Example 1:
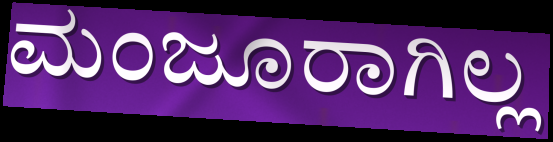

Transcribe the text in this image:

ಮಂಜೂರಾಗಿಲ್ಲ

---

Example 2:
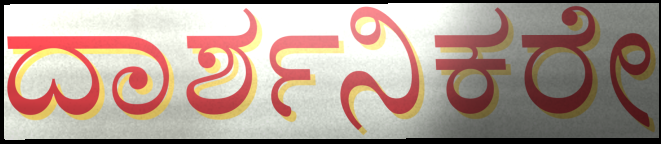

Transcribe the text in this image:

ದಾರ್ಶನಿಕರೇ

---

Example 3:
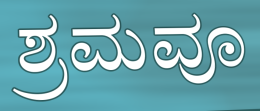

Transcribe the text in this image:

ಶ್ರಮವೂ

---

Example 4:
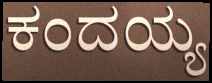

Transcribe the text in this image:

ಕಂದಯ್ಯ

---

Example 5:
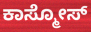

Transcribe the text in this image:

ಕಾಸ್ಮೋಸ್